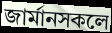
জাৰ্মানসকলে